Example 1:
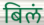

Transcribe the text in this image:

बिलं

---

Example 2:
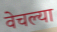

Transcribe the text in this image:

वेचल्या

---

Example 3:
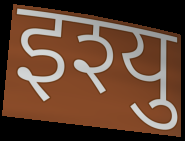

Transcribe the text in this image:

इश्यु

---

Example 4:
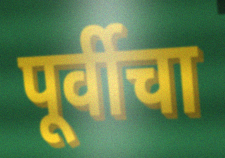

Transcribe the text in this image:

पूर्वीचा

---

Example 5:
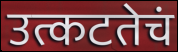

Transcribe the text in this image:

उत्कटतेचं